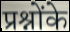
प्रश्नोंके